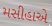
મસીહાએ